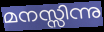
മനസ്സിന്നു